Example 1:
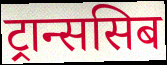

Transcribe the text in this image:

ट्रान्ससिब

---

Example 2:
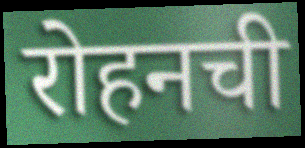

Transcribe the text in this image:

रोहनची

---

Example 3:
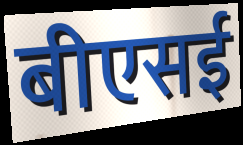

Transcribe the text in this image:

बीएसई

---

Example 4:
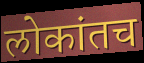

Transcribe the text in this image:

लोकांतच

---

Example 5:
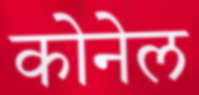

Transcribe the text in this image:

कोनेल